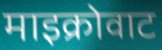
माइक्रोवाट